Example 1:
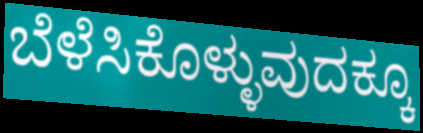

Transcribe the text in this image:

ಬೆಳೆಸಿಕೊಳ್ಳುವುದಕ್ಕೂ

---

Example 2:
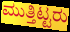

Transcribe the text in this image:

ಮುತ್ತಿಟ್ಟರು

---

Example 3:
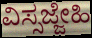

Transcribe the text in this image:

ವಿಸ್ಸಜ್ಜೇಹಿ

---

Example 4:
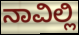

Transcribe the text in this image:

ನಾವಿಲ್ಲಿ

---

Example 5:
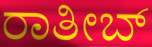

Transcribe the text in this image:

ರಾತೀಬ್